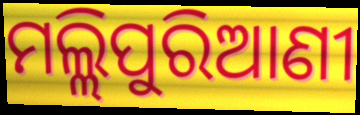
ମଲ୍ଲିପୁରିଆଣୀ